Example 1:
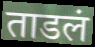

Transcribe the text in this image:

ताडलं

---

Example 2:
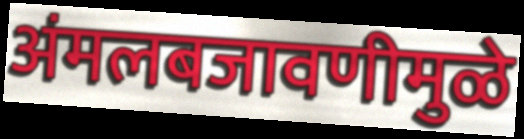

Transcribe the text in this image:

अंमलबजावणीमुळे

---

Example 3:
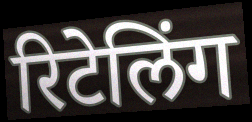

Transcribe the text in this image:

रिटेलिंग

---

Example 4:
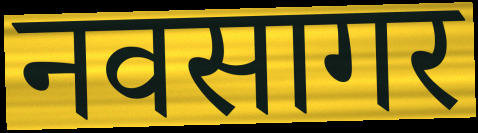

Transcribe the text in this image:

नवसागर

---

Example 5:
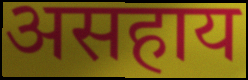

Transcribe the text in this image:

असहाय